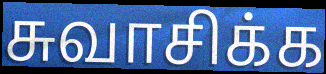
சுவாசிக்க